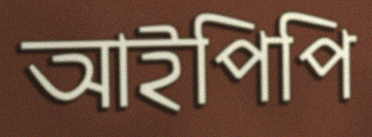
আইপিপি